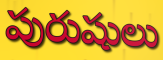
పురుషులు